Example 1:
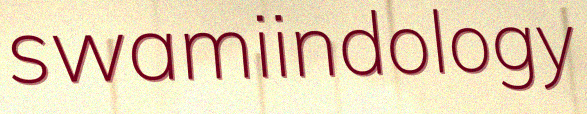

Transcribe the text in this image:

swamiindology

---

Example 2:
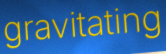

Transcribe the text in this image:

gravitating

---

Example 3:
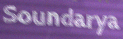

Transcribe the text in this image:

Soundarya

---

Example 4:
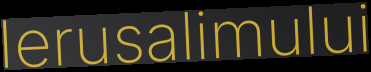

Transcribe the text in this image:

Ierusalimului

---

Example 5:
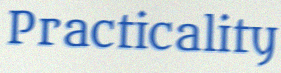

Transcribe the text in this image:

Practicality